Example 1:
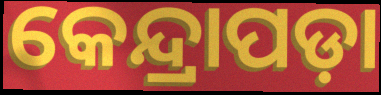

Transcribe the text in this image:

କେନ୍ଦ୍ରାପଡ଼ା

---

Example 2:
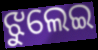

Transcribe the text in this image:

ଝୁଲେଇ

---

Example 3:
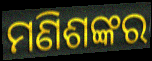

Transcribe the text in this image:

ମଣିଶଙ୍କର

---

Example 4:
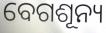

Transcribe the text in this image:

ବେଗଶୂନ୍ୟ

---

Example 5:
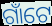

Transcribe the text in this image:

ଗାଁଟେ